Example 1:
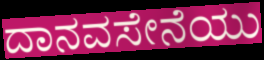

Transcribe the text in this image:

ದಾನವಸೇನೆಯು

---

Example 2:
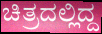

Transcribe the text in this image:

ಚಿತ್ರದಲ್ಲಿದ್ದ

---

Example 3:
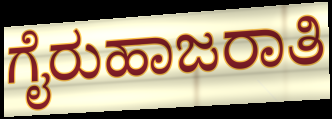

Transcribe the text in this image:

ಗೈರುಹಾಜರಾತಿ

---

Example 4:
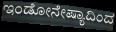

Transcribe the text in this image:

ಇಂಡೋನೇಷ್ಯಾದಿಂದ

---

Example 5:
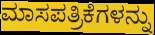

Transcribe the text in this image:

ಮಾಸಪತ್ರಿಕೆಗಳನ್ನು